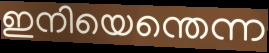
ഇനിയെന്തെന്ന